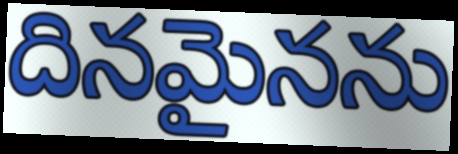
దినమైనను